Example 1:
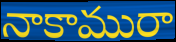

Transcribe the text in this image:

నాకామురా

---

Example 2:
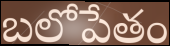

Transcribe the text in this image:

బలోపేతం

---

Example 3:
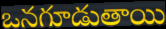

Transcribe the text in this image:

ఒనగూడుతాయి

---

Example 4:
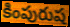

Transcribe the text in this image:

కింపురుష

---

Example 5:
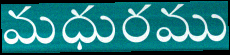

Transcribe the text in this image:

మధురము